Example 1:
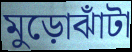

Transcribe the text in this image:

মুড়োঝাঁটা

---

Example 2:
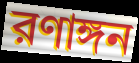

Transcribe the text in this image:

রণাঙ্গন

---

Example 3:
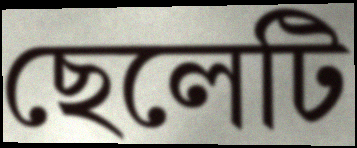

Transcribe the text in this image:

ছেলেটি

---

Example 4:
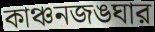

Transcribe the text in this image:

কাঞ্চনজঙঘার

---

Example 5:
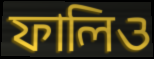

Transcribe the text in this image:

ফালিও